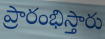
ప్రారంభిస్తారు